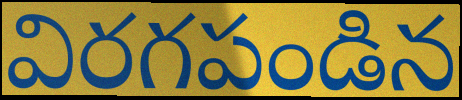
విరగపండిన